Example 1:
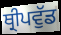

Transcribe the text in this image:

ਥ੍ਰੀਪਵੁੱਡ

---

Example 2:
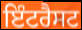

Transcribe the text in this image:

ਇੰਟਰੈਸਟ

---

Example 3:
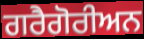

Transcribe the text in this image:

ਗਰੈਗੋਰੀਅਨ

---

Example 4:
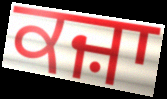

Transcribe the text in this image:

ਕਜ਼ਾ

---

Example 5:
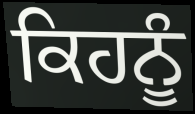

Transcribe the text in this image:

ਕਿਹਨੂੰ